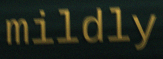
mildly